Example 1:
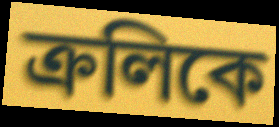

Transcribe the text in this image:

ক্রলিকে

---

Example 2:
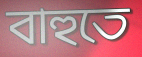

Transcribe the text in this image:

বাহুতে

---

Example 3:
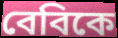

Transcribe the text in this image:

বেবিকে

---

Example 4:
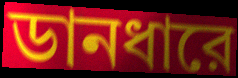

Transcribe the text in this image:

ডানধারে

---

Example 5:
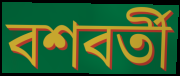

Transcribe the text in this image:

বশবর্তী